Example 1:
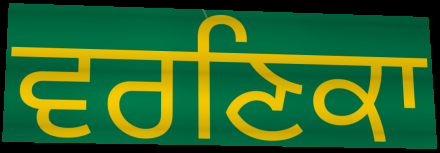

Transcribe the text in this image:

ਵਰਣਿਕਾ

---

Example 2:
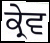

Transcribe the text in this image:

ਕ੍ਰੇਵ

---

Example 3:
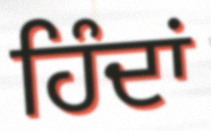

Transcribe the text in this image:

ਹਿੰਦਾਂ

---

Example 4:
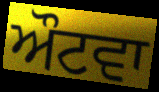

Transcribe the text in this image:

ਔਟਵਾ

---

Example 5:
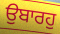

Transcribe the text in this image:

ਉਬਾਰਹੁ